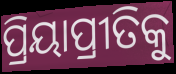
ପ୍ରିୟାପ୍ରୀତିକୁ